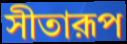
সীতারূপ